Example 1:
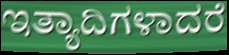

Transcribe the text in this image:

ಇತ್ಯಾದಿಗಳಾದರೆ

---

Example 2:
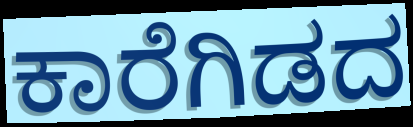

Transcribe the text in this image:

ಕಾರೆಗಿಡದ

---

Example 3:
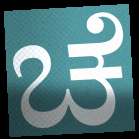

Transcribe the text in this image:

ಚೆ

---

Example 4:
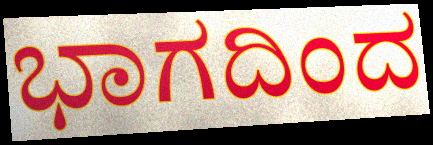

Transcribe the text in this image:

ಭಾಗದಿಂದ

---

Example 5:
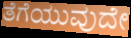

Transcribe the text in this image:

ತೆಗೆಯುವುದೇ